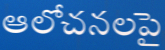
ఆలోచనలపై